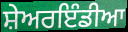
ਸ਼ੇਅਰਇੰਡੀਆ